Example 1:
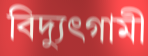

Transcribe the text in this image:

বিদ্যুৎগামী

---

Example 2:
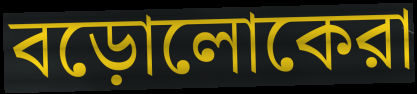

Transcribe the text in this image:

বড়োলোকেরা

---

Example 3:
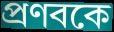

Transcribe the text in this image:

প্রণবকে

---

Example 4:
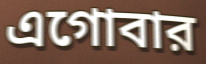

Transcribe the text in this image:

এগোবার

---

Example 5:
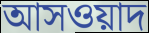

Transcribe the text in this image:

আসওয়াদ